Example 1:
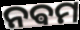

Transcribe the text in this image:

ନଵମ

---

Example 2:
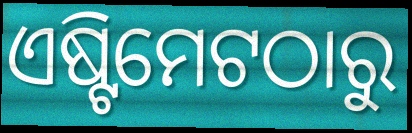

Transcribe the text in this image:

ଏଷ୍ଟିମେଟଠାରୁ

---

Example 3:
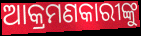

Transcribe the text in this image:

ଆକ୍ରମଣକାରୀଙ୍କୁ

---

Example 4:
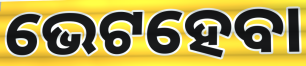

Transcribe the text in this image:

ଭେଟହେବା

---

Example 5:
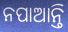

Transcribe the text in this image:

ନପାଆନ୍ତି